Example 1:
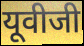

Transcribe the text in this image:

यूवीजी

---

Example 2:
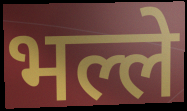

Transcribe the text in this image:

भल्ले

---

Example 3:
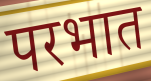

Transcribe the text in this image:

परभात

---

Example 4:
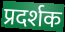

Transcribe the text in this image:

प्रदर्शक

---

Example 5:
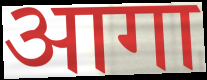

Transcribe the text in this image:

आगा